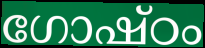
ഗോഷ്ഠം